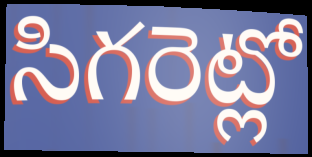
సిగరెట్లో